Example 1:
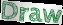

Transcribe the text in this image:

Draw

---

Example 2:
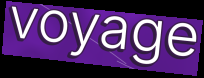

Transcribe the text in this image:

voyage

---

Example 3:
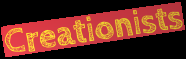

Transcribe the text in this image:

Creationists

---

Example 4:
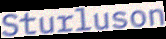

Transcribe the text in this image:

Sturluson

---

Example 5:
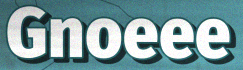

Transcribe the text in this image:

Gnoeee